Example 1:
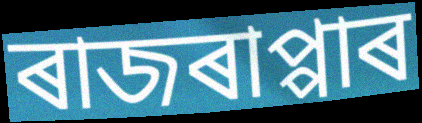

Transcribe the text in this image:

ৰাজৰাপ্পাৰ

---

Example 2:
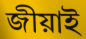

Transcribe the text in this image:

জীয়াই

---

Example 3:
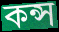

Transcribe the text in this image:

কন্স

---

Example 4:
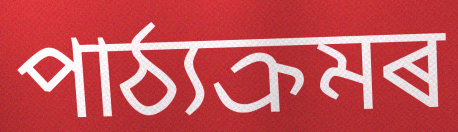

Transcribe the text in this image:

পাঠ্যক্ৰমৰ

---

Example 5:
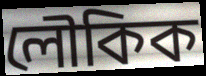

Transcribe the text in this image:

লৌকিক